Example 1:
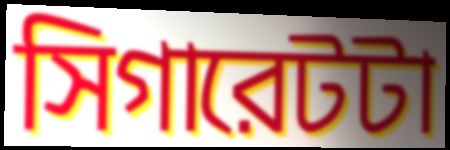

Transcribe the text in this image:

সিগারেটটা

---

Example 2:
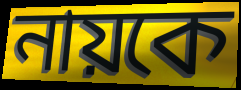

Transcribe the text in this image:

নায়কে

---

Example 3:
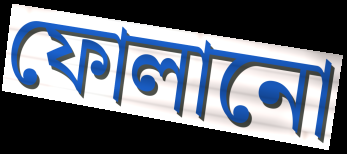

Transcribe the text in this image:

ফোলানো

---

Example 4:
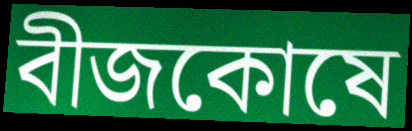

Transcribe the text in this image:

বীজকোষে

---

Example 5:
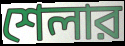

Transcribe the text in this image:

শেলার